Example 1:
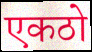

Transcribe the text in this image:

एकठो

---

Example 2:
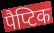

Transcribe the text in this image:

पैप्टिक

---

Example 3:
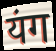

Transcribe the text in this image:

यंग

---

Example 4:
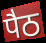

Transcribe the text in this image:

पैठ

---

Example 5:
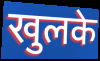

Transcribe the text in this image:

खुलके